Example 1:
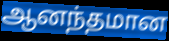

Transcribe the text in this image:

ஆனந்தமான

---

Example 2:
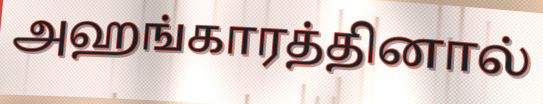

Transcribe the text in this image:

அஹங்காரத்தினால்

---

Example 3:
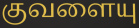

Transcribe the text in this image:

குவளையு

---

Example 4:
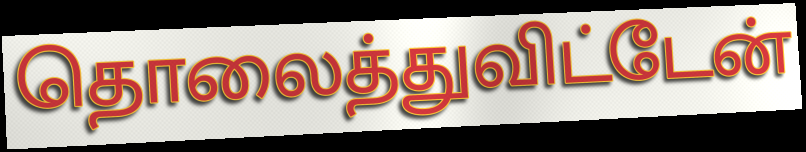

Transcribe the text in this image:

தொலைத்துவிட்டேன்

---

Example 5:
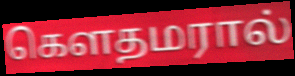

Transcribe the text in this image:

கௌதமரால்